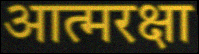
आत्मरक्षा